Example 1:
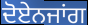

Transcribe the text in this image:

ਦੋਏਨਜਾਂਗ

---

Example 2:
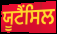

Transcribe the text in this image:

ਯੂਟੈਂਸਿਲ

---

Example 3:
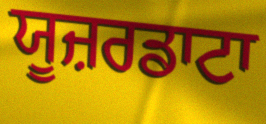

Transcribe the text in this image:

ਯੂਜ਼ਰਡਾਟਾ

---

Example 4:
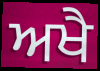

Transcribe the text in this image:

ਅਖੈ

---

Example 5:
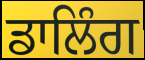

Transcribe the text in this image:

ਡਾਲਿੰਗ